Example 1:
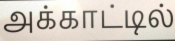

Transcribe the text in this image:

அக்காட்டில்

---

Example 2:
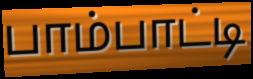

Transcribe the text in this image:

பாம்பாட்டி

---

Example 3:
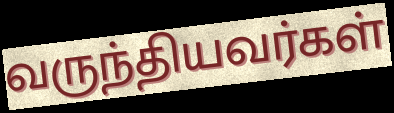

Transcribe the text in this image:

வருந்தியவர்கள்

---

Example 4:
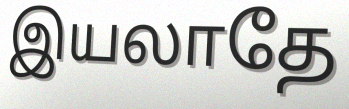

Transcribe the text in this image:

இயலாதே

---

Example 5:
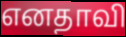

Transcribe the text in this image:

எனதாவி